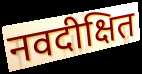
नवदीक्षित